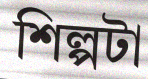
শিল্পটা